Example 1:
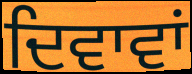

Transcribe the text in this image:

ਦਿਵਾਵਾਂ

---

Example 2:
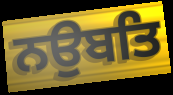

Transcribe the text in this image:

ਨਉਬਤਿ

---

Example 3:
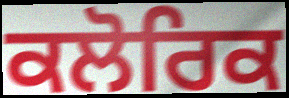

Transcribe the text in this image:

ਕਲੋਰਿਕ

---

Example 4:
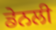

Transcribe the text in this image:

ਡੇਨਲੀ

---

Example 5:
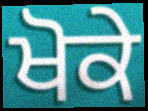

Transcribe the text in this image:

ਖੋਕੇ